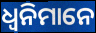
ଧ୍ୱନିମାନେ